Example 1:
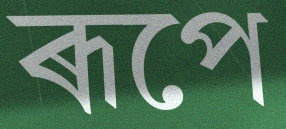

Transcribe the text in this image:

ৰূপে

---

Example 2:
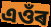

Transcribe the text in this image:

এওঁৰ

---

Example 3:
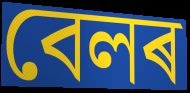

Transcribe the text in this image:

বেলৰ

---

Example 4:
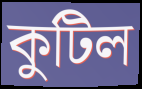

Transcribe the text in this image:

কুটিল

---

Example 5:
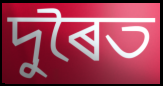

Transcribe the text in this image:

দুৰৈত